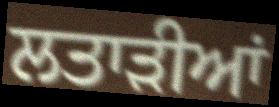
ਲਤਾੜੀਆਂ